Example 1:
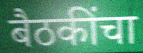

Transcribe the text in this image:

बैठकींचा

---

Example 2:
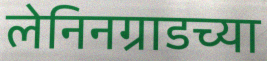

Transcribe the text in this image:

लेनिनग्राडच्या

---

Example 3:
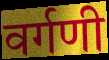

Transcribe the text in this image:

वर्गणी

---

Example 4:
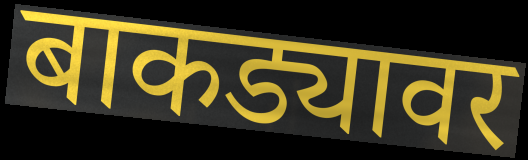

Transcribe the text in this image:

बाकड्यावर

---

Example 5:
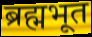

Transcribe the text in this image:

ब्रह्मभूत